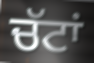
ਚੱਟਾਂ